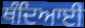
ਥੰਦਿਆਈ